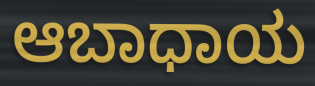
ಆಬಾಧಾಯ